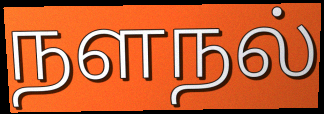
நளநல்